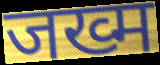
जख्म